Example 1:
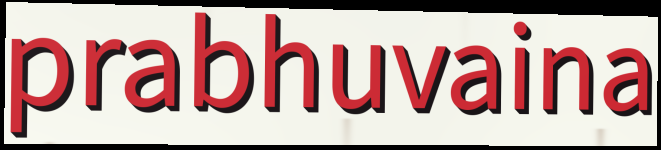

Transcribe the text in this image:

prabhuvaina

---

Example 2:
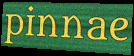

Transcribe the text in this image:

pinnae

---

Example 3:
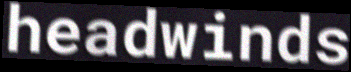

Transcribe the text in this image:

headwinds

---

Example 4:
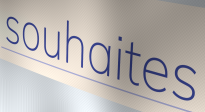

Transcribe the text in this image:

souhaites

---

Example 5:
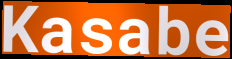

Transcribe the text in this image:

Kasabe